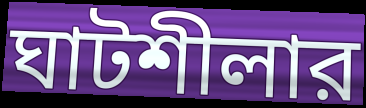
ঘাটশীলার